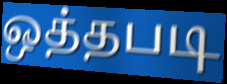
ஒத்தபடி